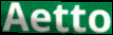
Aetto